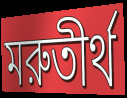
মরুতীর্থ